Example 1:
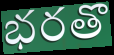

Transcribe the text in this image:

భరతొ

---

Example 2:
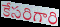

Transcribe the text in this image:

కేసరిగారి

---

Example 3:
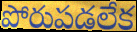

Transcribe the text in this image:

పోరుపడలేక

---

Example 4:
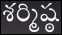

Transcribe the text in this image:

శర్మిష్ఠ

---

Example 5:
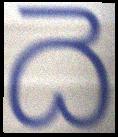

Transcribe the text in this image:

దె